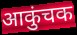
आकुंचक